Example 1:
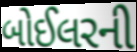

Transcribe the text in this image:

બોઈલરની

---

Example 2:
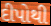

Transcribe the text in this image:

દીપોથી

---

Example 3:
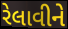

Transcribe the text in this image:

રેલાવીને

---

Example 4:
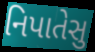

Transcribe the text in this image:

નિપાતેસુ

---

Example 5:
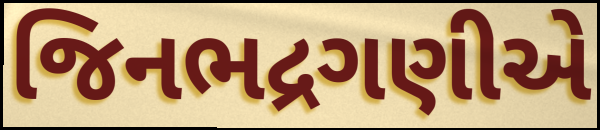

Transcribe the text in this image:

જિનભદ્રગણીએ